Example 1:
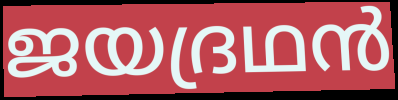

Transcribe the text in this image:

ജയദ്രഥൻ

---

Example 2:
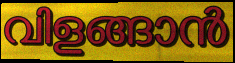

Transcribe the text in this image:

വിളങ്ങാൻ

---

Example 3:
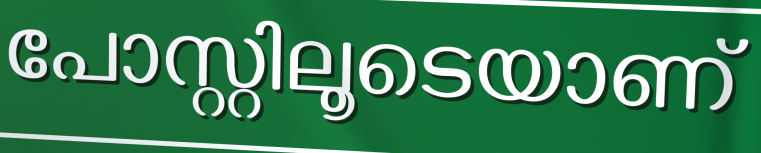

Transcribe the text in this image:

പോസ്റ്റിലൂടെയാണ്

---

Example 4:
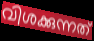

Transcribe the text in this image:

വിശക്കുന്നത്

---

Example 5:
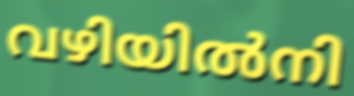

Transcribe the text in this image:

വഴിയിൽനി